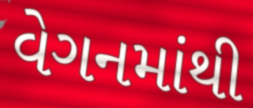
વેગનમાંથી